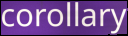
corollary